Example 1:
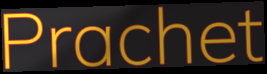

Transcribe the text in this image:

Prachet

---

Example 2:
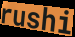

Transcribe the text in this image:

rushi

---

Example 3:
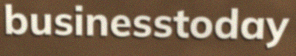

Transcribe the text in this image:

businesstoday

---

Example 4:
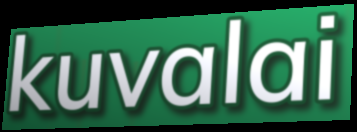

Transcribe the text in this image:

kuvalai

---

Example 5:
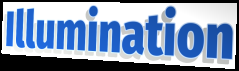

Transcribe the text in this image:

Illumination